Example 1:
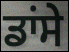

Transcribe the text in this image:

ਡਾਂਸੇ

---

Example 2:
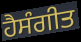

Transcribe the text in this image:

ਹੈਸੰਗੀਤ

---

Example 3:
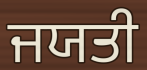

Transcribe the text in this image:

ਜਯਤੀ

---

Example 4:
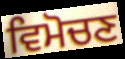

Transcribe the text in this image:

ਵਿਮੋਚਣ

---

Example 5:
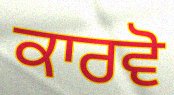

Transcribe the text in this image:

ਕਾਰਵੋ